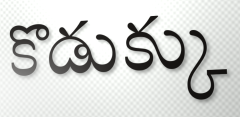
కొడుక్కు